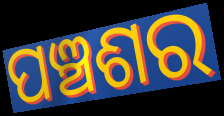
ପଞ୍ଚଶର